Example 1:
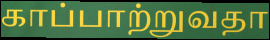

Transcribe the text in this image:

காப்பாற்றுவதா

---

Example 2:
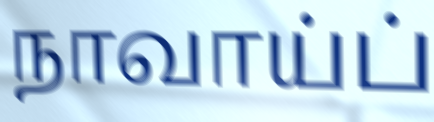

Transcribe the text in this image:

நாவாய்ப்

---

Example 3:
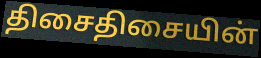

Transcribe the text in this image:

திசைதிசையின்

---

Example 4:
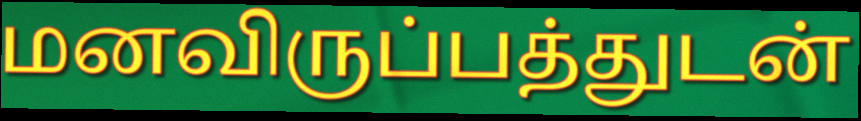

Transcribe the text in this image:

மனவிருப்பத்துடன்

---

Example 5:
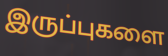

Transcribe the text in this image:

இருப்புகளை